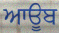
ਆਊਬ